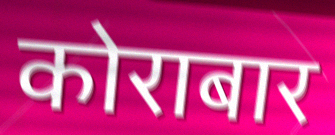
कोराबार